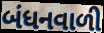
બંધનવાળી